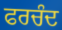
ਫਰਚੰਦ